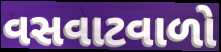
વસવાટવાળો